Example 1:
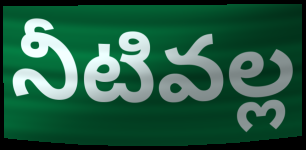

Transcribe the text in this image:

నీటివల్ల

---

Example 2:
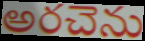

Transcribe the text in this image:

అరచెను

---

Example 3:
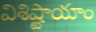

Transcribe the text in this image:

విశిష్టాయాం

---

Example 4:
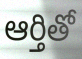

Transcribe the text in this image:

ఆర్తితో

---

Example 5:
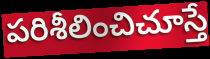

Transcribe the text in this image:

పరిశీలించిచూస్తే